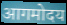
आगमोदय